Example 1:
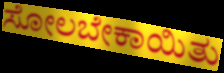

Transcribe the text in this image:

ಸೋಲಬೇಕಾಯಿತು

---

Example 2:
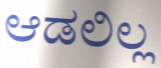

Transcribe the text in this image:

ಆಡಲಿಲ್ಲ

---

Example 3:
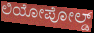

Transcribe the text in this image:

ಲಿಯೋಪೋಲ್ಡ್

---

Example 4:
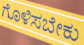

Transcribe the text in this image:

ಗೊಳಿಸಬೇಕು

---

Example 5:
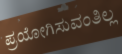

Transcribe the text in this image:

ಪ್ರಯೋಗಿಸುವಂತಿಲ್ಲ